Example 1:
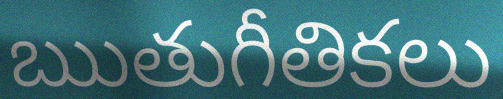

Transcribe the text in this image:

ఋతుగీతికలు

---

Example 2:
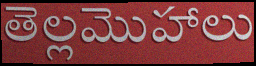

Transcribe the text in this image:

తెల్లమొహాలు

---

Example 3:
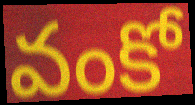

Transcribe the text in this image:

వంకో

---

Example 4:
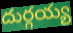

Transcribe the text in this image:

దుర్గయ్య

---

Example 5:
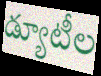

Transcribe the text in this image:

డ్యూటీల